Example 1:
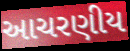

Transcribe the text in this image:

આચરણીય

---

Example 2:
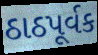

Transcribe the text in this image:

ઠાઠપૂર્વક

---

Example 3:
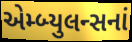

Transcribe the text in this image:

એમ્બ્યુલન્સનાં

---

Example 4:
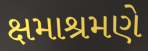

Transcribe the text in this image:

ક્ષમાશ્રમણે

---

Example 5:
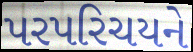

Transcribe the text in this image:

પરપરિચયને